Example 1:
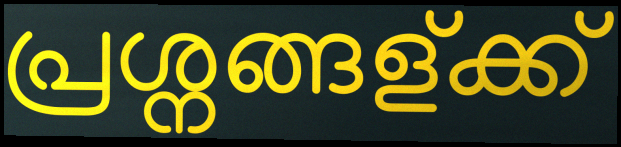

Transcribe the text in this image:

പ്രശ്നങ്ങള്ക്ക്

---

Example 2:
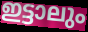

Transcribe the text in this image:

ഇട്ടാലും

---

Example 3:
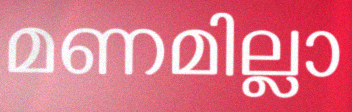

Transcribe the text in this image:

മണമില്ലാ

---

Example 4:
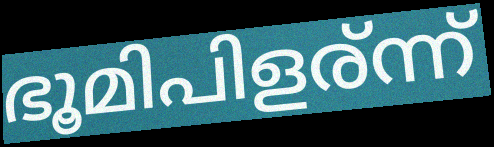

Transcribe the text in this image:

ഭൂമിപിളര്ന്ന്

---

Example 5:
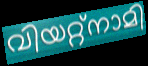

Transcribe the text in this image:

വിയറ്റ്നാമി